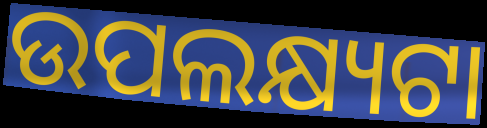
ଉପଲକ୍ଷ୍ୟଟା